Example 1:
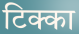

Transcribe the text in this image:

टिक्का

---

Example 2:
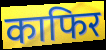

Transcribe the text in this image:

काफिर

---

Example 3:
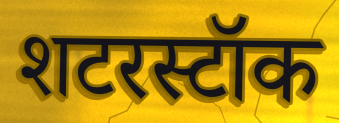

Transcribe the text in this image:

शटरस्टॉक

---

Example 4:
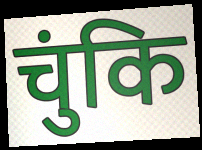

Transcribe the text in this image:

चुंकि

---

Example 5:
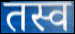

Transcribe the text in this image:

तस्व